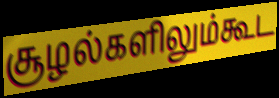
சூழல்களிலும்கூட